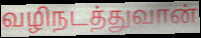
வழிநடத்துவான்